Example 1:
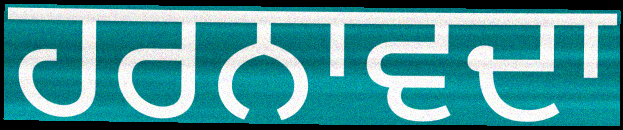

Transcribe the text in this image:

ਹਰਨਾਵਦਾ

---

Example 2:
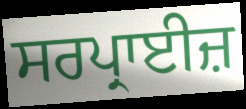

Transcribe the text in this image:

ਸਰਪ੍ਰਾਈਜ਼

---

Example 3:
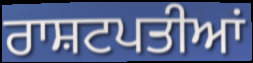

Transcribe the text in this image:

ਰਾਸ਼ਟਪਤੀਆਂ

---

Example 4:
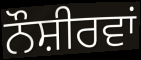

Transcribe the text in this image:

ਨੌਸ਼ੀਰਵਾਂ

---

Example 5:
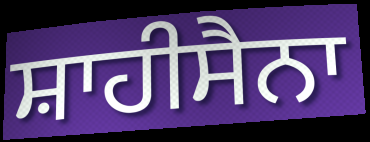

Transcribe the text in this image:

ਸ਼ਾਹੀਸੈਨਾ